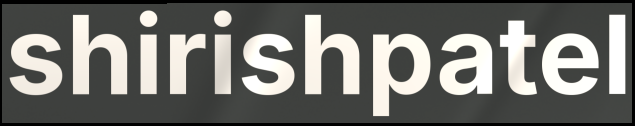
shirishpatel